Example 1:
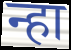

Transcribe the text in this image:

न्हा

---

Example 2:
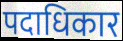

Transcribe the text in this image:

पदाधिकार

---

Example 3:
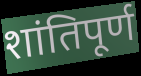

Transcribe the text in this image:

शांतिपूर्ण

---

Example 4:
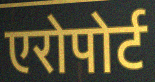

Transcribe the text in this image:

एरोपोर्ट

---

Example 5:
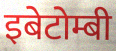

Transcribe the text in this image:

इबेटोम्बी